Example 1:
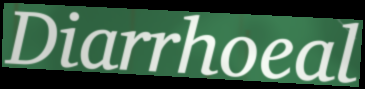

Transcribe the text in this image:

Diarrhoeal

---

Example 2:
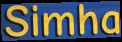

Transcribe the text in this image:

Simha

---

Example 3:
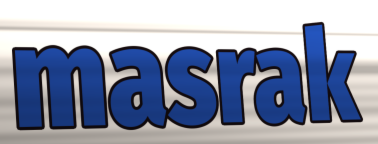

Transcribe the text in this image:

masrak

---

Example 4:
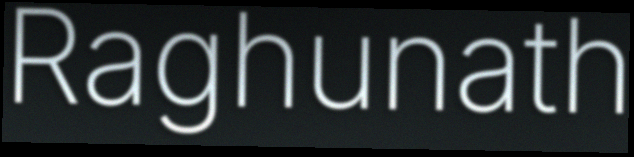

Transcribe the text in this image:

Raghunath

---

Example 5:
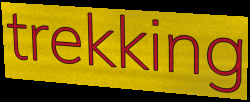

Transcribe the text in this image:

trekking